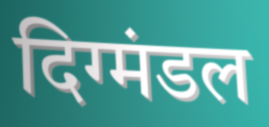
दिग्मंडल